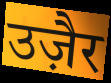
उज़ैर